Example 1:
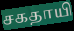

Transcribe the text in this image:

சகதாயி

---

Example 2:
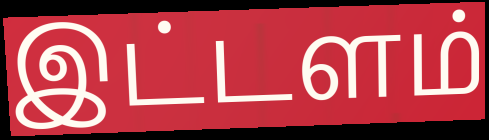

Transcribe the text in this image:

இட்டளம்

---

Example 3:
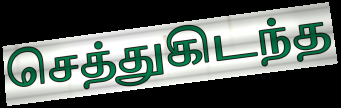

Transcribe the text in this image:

செத்துகிடந்த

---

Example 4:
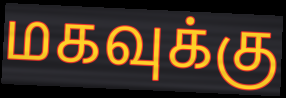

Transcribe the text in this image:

மகவுக்கு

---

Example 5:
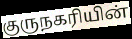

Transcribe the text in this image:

குருநகரியின்